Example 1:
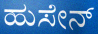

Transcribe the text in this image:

ಹುಸೇನ್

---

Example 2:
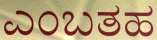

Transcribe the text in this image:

ಎಂಬತಹ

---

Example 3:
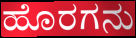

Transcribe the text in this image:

ಹೊರಗನು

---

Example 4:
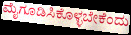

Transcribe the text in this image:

ಮೈಗೂಡಿಸಿಕೊಳ್ಳಬೇಕೆಂದು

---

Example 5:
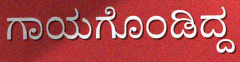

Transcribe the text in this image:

ಗಾಯಗೊಂಡಿದ್ದ